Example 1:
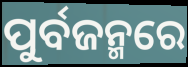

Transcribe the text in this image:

ପୁର୍ବଜନ୍ମରେ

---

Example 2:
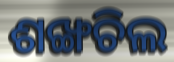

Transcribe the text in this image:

ଶଙ୍ଖଚିଲ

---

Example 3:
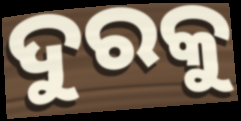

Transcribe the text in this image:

ଦୁରକୁ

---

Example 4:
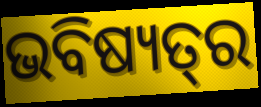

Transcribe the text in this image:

ଭବିଷ୍ୟତ୍‌ର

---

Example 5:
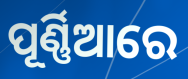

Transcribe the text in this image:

ପୂର୍ଣ୍ଣିଆରେ